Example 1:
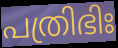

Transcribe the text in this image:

പത്രിഭിഃ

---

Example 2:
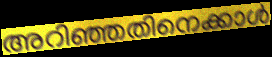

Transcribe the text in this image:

അറിഞ്ഞതിനെക്കാൾ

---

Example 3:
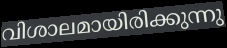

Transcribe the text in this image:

വിശാലമായിരിക്കുന്നു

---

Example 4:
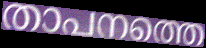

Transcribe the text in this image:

താപനത്തെ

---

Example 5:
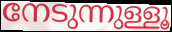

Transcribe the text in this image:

നേടുന്നുള്ളൂ